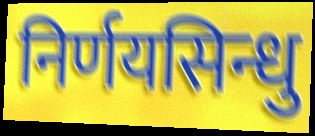
निर्णयसिन्धु